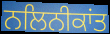
ਨਲਿਨੀਕਾਂਤ